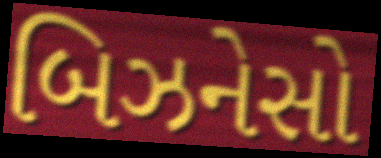
બિઝનેસો